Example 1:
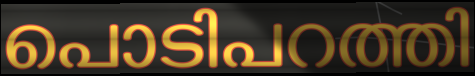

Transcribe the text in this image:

പൊടിപറത്തി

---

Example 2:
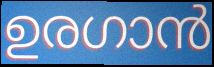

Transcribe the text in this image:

ഉരഗാൻ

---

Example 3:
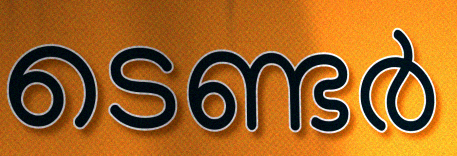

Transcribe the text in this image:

ടെണ്ടർ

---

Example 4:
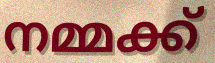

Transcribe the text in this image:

നമ്മക്ക്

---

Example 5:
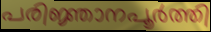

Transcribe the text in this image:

പരിജ്ഞാനപൂർത്തി